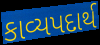
કાવ્યપદાર્થ